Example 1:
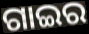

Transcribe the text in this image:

ଗାଇର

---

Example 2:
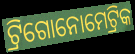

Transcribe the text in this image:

ଟ୍ରିଗୋନୋମେଟ୍ରିକ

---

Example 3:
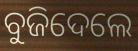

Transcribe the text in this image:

ବୁଜିଦେଲେ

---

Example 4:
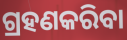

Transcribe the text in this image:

ଗ୍ରହଣକରିବା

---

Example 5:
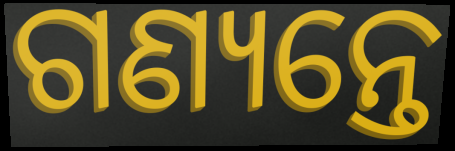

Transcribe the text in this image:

ଗଣ୍ୟନ୍ତେ